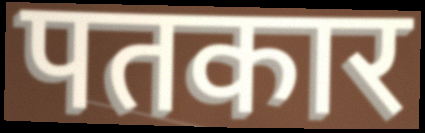
पतकार